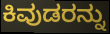
ಕಿವುಡರನ್ನು